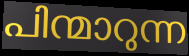
പിന്മാറുന്ന